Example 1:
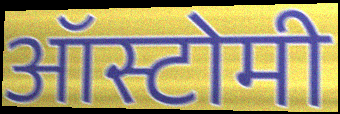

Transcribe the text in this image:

ऑस्टोमी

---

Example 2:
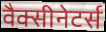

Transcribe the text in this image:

वैक्सीनेटर्स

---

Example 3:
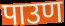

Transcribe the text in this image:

पाउण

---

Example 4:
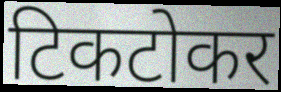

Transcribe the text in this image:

टिकटोकर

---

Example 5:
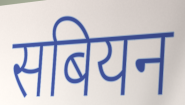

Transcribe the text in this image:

सबियन